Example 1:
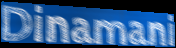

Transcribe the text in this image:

Dinamani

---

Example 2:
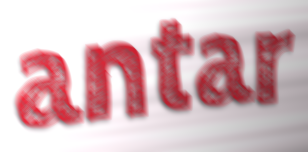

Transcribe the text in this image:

antar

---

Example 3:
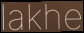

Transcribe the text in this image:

lakhe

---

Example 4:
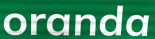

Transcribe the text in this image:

oranda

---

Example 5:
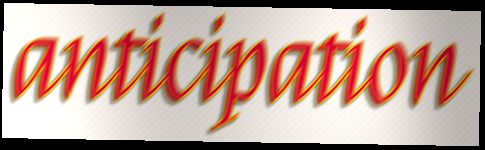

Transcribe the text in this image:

anticipation